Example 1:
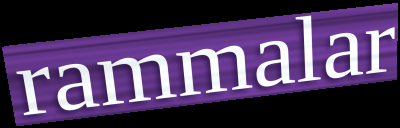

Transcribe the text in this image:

rammalar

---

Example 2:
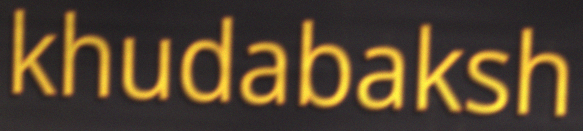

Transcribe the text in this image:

khudabaksh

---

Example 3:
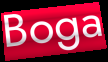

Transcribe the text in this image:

Boga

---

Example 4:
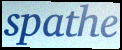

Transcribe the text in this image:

spathe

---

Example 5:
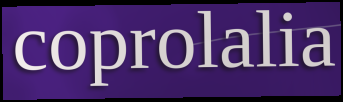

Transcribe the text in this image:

coprolalia